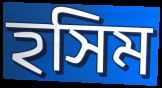
হসিম